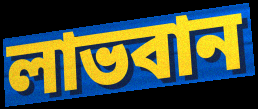
লাভবান